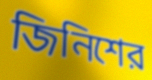
জিনিশের